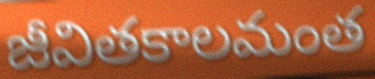
జీవితకాలమంత